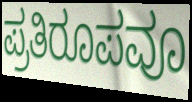
ಪ್ರತಿರೂಪವೂ